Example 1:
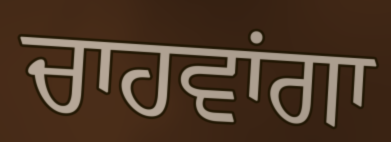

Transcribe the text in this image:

ਚਾਹਵਾਂਗਾ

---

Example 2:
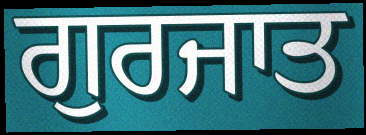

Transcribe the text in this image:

ਗੁਰਜਾਤ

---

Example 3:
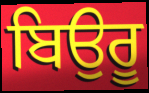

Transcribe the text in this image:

ਬਿਉਰੂ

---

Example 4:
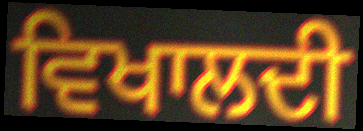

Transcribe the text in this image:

ਵਿਖਾਲਦੀ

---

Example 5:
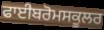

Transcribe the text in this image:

ਫਾਈਬਰੋਮਸਕੂਲਰ